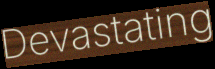
Devastating